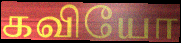
கவியோ